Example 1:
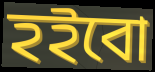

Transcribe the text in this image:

হইবো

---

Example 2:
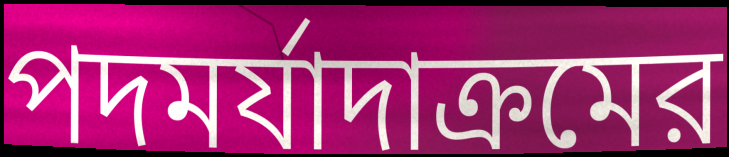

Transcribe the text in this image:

পদমর্যাদাক্রমের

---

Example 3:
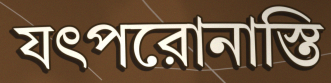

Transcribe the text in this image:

যৎপরোনাস্তি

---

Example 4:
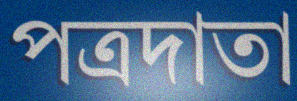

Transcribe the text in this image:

পত্রদাতা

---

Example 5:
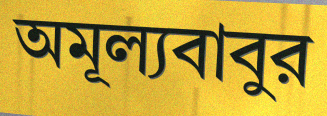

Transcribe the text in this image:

অমূল্যবাবুর